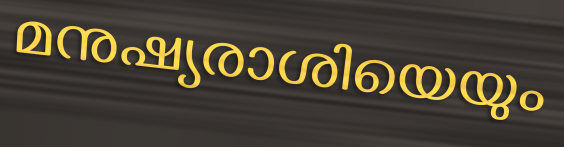
മനുഷ്യരാശിയെയും